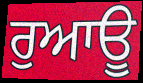
ਰੁਆਊ